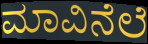
ಮಾವಿನೆಲೆ